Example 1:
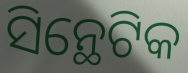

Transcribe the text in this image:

ସିନ୍ଥେଟିକ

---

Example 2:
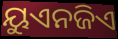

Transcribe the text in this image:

ୟୁଏନଜିଏ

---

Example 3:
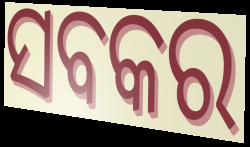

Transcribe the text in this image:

ସବକର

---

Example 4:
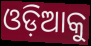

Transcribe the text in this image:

ଓଡ଼ିଆକୁ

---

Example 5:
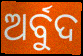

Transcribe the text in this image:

ଅର୍ବୁଦ